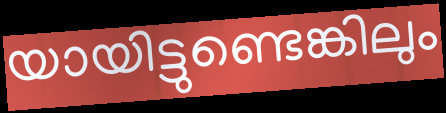
യായിട്ടുണ്ടെങ്കിലും